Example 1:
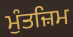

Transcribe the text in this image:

ਮੁੰਤਜ਼ਿਮ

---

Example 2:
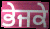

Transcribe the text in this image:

ਭੇਜਕੇ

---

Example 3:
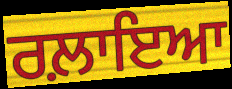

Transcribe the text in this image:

ਰਲ਼ਾਇਆ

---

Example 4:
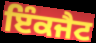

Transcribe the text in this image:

ਇੰਕਜੈਟ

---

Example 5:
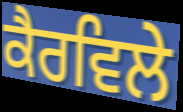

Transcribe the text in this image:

ਕੈਰਵਿਲੇ